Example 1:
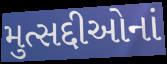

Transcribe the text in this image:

મુત્સદ્દીઓનાં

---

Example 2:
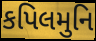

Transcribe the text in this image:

કપિલમુનિ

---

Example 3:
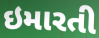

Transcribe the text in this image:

ઇમારતી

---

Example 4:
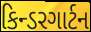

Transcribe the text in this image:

કિન્ડરગાર્ટન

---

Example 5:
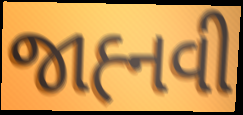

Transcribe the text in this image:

જાહ્‍નવી